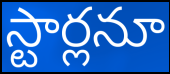
స్టార్లనూ